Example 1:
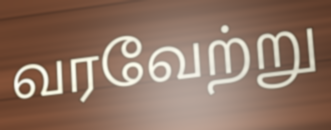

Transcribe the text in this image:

வரவேற்று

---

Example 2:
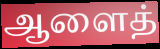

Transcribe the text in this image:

ஆளைத்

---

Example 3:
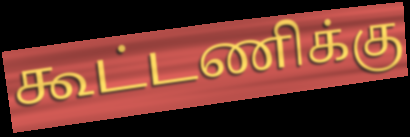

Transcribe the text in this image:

கூட்டணிக்கு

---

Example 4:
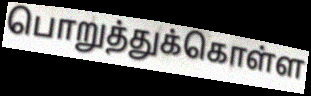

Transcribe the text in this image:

பொறுத்துக்கொள்ள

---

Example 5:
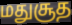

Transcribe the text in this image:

மதுசூத